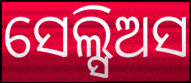
ସେଲ୍ସିଅସ